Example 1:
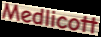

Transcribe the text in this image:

Medlicott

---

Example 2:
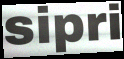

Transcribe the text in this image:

sipri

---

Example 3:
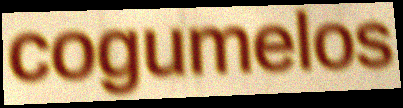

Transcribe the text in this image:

cogumelos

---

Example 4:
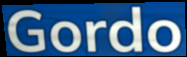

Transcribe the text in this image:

Gordo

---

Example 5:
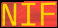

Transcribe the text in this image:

NIF